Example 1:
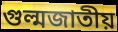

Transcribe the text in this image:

গুল্মজাতীয়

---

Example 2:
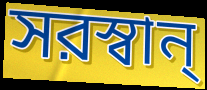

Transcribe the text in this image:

সরস্বান্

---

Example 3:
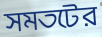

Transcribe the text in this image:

সমতটের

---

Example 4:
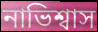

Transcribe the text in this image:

নাভিশ্বাস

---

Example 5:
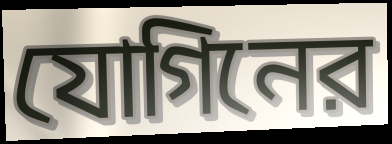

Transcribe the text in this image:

যোগিনের